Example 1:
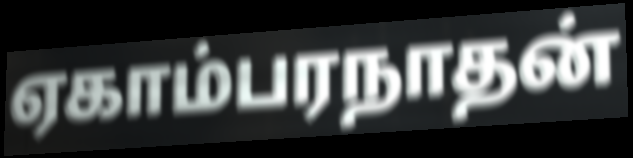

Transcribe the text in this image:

ஏகாம்பரநாதன்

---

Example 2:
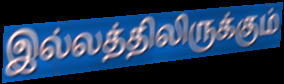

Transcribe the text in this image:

இல்லத்திலிருக்கும்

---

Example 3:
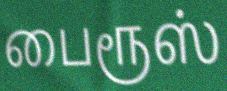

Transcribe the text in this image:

பைரூஸ்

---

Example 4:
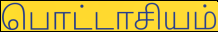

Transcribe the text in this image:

பொட்டாசியம்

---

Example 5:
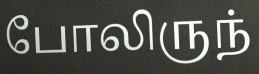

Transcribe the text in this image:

போலிருந்